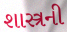
શાસ્ત્રની